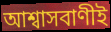
আশ্বাসবাণীই